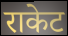
राकेट